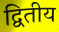
द्वितीय